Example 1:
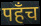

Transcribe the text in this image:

पहँच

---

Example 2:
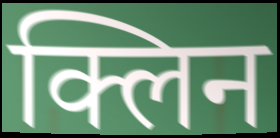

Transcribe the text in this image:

क्लिन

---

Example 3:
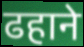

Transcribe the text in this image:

ढहाने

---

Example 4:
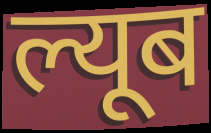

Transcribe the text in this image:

ल्यूब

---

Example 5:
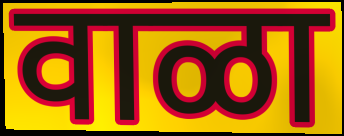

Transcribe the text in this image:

वाळा